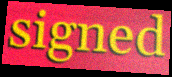
signed